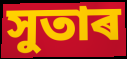
সুতাৰ